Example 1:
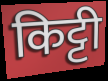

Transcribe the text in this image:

किट्टी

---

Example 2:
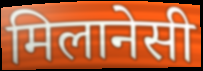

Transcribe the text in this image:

मिलानेसी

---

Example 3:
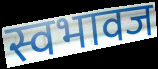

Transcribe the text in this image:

स्वभावज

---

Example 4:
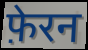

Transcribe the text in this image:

फ़ेरन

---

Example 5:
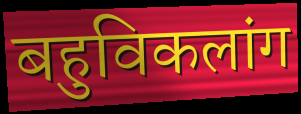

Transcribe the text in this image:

बहुविकलांग